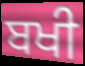
ਬਖੀ